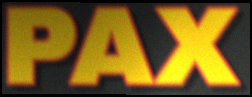
PAX